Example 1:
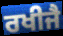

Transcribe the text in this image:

ਰਖੀਜੈ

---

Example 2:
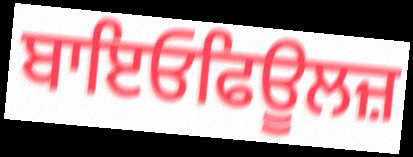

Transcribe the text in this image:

ਬਾਇਓਫਿਊਲਜ਼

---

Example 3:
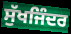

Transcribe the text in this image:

ਸੁੱਖਜਿੰਦਰ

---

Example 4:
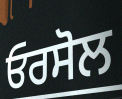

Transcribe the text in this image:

ਓਰਸੋਲ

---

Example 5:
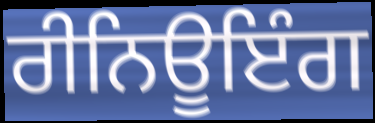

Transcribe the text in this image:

ਰੀਨਿਊਇੰਗ